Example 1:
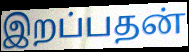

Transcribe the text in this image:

இறப்பதன்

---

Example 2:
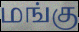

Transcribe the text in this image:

மங்கு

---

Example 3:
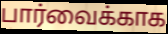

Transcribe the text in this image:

பார்வைக்காக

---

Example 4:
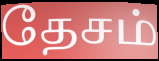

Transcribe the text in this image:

தேசம்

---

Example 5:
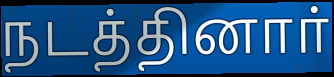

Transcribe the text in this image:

நடத்தினார்